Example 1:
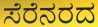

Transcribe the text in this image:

ಸೆರೆನರದ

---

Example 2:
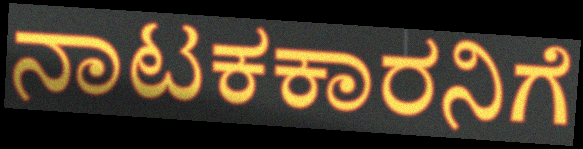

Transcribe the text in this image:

ನಾಟಕಕಾರನಿಗೆ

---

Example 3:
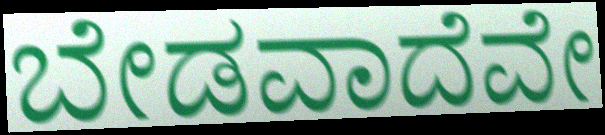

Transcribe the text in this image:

ಬೇಡವಾದೆವೇ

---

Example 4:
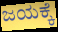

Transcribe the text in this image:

ಜಯಕ್ಕೆ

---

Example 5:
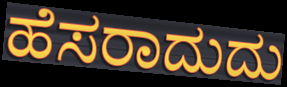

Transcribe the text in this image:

ಹೆಸರಾದುದು